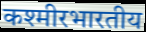
कश्मीरभारतीय